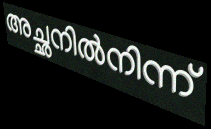
അച്ഛനിൽനിന്ന്